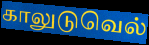
காலுடுவெல்